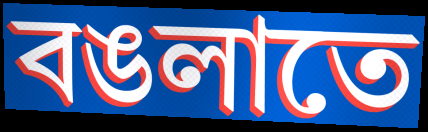
বঙলাতে